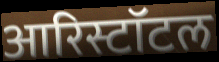
आरिस्टॉटल